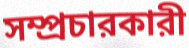
সম্প্রচারকারী